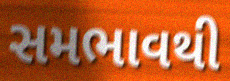
સમભાવથી